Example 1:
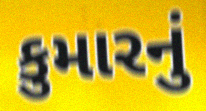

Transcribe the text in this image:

કુમારનું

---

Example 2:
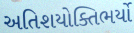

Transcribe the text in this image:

અતિશયોક્તિભર્યો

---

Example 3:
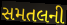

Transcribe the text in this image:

સમતલની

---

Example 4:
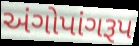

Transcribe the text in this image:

અંગોપાંગરૂપ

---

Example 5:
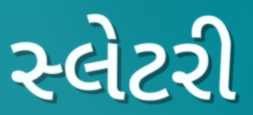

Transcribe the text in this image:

સ્લેટરી